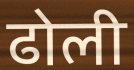
ढोली